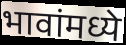
भावांमध्ये